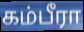
கம்பீரா